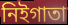
নিইগাতা